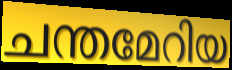
ചന്തമേറിയ